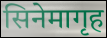
सिनेमागृह